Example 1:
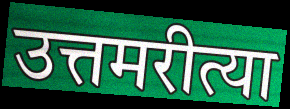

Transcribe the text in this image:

उत्तमरीत्या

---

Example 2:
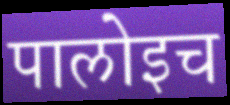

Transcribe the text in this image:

पालोइच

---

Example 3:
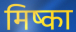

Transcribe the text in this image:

मिष्का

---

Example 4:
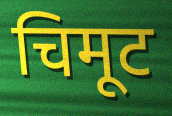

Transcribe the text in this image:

चिमूट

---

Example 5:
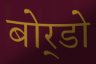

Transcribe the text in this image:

बोर्डो